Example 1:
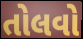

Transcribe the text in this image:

તોલવો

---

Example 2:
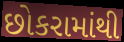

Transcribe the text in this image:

છોકરામાંથી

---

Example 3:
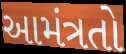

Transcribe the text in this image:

આમંત્રતો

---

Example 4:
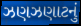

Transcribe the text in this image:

ઝણઝણાટનું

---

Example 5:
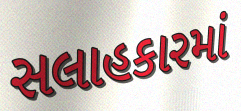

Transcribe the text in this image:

સલાહકારમાં